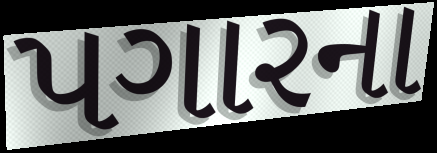
પગારના